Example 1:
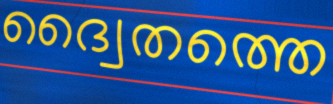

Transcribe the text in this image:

ദ്വൈതത്തെ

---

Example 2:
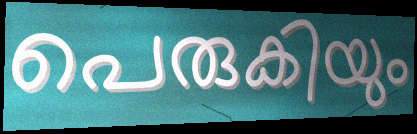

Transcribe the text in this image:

പെരുകിയും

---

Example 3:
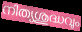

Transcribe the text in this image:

നിത്യശുദ്ധവും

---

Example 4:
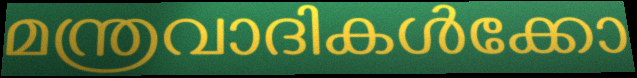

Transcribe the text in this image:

മന്ത്രവാദികൾക്കോ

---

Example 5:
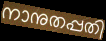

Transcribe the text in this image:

നാനുതപ്പതി